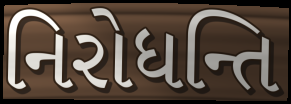
નિરોધન્તિ